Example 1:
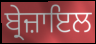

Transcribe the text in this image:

ਬ੍ਰੇਜ਼ਾਇਲ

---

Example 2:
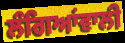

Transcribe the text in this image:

ਲੰਗਿਆਂਵਾਲੀ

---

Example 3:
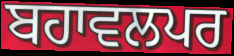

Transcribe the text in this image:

ਬਹਾਵਲਪਰ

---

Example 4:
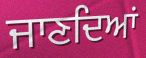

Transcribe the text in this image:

ਜਾਣਦਿਆਂ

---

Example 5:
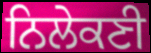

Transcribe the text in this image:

ਨਿਲੇਕਣੀ